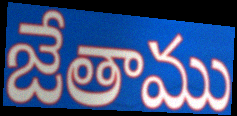
జేతాము